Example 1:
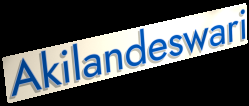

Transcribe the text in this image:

Akilandeswari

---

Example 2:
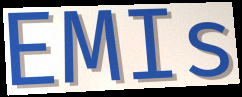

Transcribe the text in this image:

EMIs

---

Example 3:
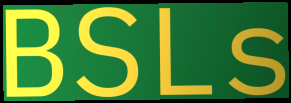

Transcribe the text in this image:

BSLs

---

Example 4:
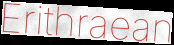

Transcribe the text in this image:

Erithraean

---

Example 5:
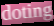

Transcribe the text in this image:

doting